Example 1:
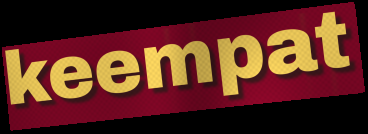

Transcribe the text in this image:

keempat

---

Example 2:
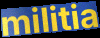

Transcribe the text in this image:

militia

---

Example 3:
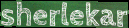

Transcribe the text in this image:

sherlekar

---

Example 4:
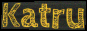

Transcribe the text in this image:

Katru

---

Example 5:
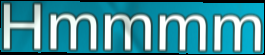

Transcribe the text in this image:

Hmmmm